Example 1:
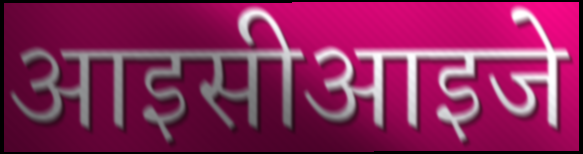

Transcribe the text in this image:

आइसीआइजे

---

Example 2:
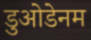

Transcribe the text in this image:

डुओडेनम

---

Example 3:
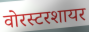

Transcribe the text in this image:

वोरस्टरशायर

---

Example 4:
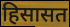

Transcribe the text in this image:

हिसासत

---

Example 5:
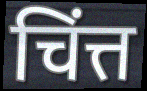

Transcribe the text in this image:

चिंत्त